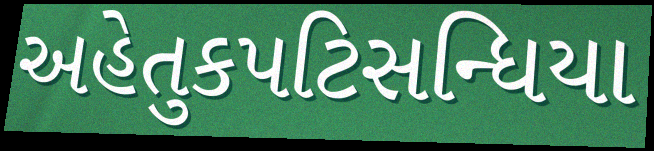
અહેતુકપટિસન્ધિયા